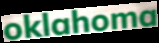
oklahoma